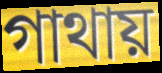
গাথায়